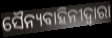
ସୈନ୍ୟବାହିନୀଦ୍ୱାରା